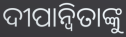
ଦୀପାନ୍ୱିତାଙ୍କୁ